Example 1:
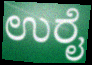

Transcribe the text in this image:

ಉರೈ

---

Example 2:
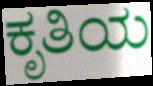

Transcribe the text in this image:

ಕೃತಿಯ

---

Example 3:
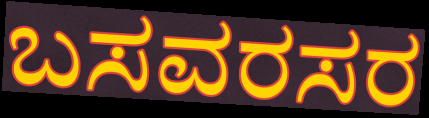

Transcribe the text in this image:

ಬಸವರಸರ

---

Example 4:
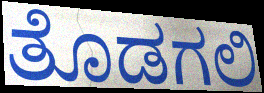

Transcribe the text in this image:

ತೊಡಗಲಿ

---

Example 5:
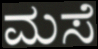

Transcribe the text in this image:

ಮಸೆ